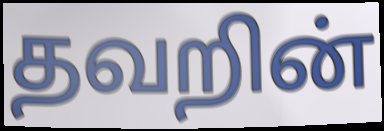
தவறின்